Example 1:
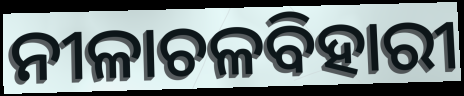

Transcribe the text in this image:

ନୀଳାଚଳବିହାରୀ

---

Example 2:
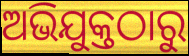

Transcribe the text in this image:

ଅଭିଯୁକ୍ତଠାରୁ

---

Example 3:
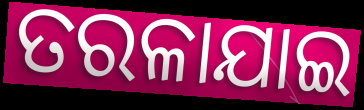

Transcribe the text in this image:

ତରଳାଯାଇ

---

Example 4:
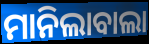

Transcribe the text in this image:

ମାନିଲାବାଲା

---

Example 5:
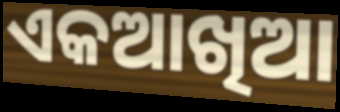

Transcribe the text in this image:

ଏକଆଖିଆ